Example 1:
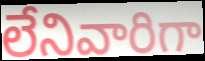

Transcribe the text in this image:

లేనివారిగా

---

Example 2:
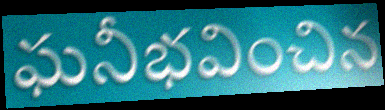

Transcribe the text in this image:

ఘనీభవించిన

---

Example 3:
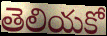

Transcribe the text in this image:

తెలియకో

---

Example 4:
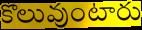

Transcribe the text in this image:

కొలువుంటారు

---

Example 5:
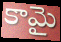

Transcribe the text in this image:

కామై